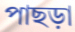
পাছড়া